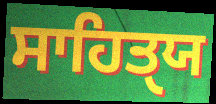
ਸਾਹਿਤੑਯ